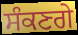
ਸੰਕਣਗੇ